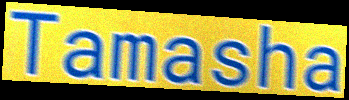
Tamasha